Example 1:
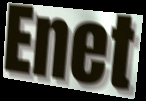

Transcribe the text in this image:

Enet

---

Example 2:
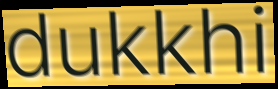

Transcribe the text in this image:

dukkhi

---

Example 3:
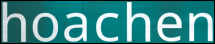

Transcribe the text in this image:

hoachen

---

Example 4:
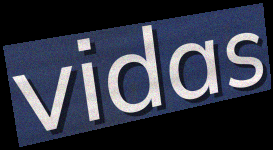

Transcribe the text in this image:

vidas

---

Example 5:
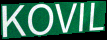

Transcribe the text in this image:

KOVIL